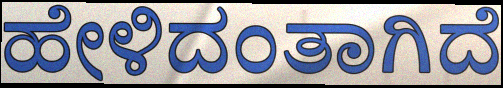
ಹೇಳಿದಂತಾಗಿದೆ